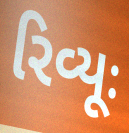
રિવ્યૂઃ